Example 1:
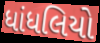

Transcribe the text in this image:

ધાંધલિયો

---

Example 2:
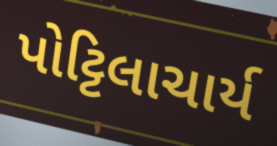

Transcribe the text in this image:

પોટ્ટિલાચાર્ય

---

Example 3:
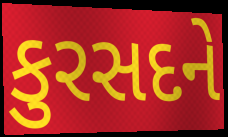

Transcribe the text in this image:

કુરસદને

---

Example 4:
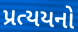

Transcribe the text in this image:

પ્રત્યયનો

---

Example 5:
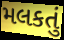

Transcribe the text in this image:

મલકતું